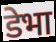
डेभा